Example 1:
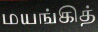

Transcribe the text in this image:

மயங்கித்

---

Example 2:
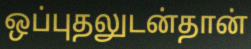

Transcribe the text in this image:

ஒப்புதலுடன்தான்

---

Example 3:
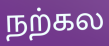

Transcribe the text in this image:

நற்கல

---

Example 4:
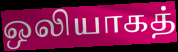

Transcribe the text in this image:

ஒலியாகத்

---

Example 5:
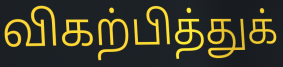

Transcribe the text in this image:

விகற்பித்துக்